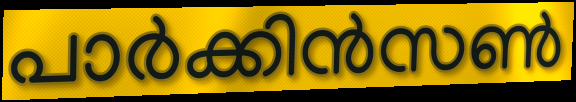
പാർക്കിൻസൺ